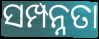
ସମ୍ପନ୍ନତା